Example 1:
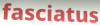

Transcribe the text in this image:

fasciatus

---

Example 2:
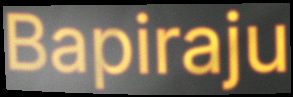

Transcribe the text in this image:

Bapiraju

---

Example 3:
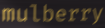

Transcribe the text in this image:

mulberry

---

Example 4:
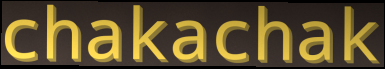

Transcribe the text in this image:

chakachak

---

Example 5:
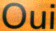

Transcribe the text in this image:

Oui